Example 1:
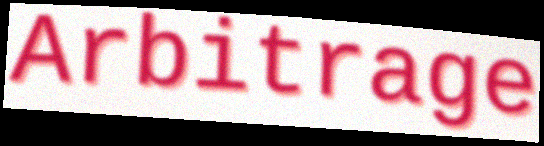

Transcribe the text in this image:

Arbitrage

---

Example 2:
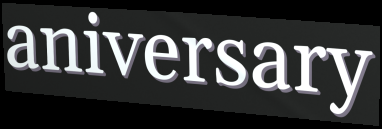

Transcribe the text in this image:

aniversary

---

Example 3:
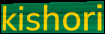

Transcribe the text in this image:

kishori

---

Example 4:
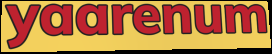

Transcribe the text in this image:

yaarenum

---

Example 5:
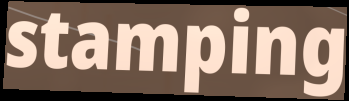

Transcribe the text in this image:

stamping